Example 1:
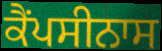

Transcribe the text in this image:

ਕੈਂਪਸੀਨਾਸ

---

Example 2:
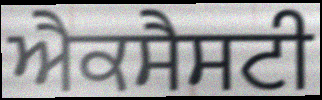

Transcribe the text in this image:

ਐਕਸੈਸਟੀ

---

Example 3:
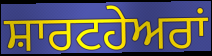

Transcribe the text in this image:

ਸ਼ਾਰਟਹੇਅਰਾਂ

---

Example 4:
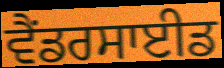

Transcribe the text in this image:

ਵੈਂਡਰਸਾਈਡ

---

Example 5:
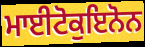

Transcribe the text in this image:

ਮਾਈਟੋਕੁਇਨੋਨ